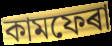
কামফেৰা